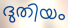
ദുതിയം